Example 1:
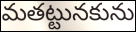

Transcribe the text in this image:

మతట్టునకును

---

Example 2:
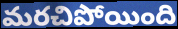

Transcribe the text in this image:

మరచిపోయింది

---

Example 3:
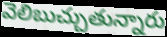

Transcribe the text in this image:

వెలిబుచ్చుతున్నారు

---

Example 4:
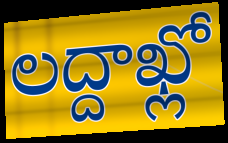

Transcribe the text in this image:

లద్దాఖ్లో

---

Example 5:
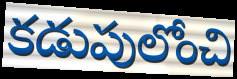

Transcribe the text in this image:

కడుపులోంచి